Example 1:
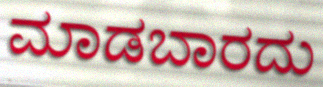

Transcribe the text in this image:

ಮಾಡಬಾರದು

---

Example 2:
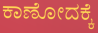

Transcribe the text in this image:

ಕಾಣೋದಕ್ಕೆ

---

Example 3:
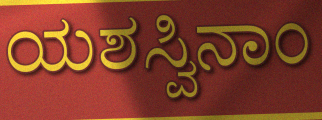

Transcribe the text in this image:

ಯಶಸ್ವಿನಾಂ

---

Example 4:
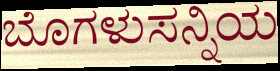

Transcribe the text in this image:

ಬೊಗಳುಸನ್ನಿಯ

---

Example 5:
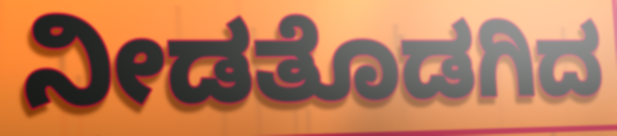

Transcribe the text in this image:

ನೀಡತೊಡಗಿದ